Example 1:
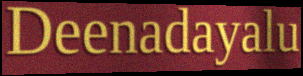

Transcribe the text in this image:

Deenadayalu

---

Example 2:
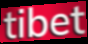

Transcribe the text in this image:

tibet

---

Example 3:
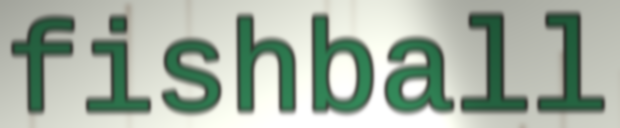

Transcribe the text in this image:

fishball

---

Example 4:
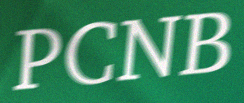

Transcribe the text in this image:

PCNB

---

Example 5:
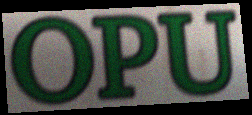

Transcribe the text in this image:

OPU